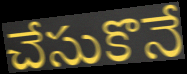
చేసుకొనే